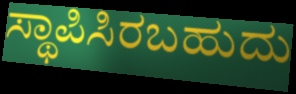
ಸ್ಥಾಪಿಸಿರಬಹುದು